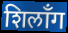
शिलाँग